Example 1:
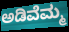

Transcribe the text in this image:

ಅಡಿವೆಮ್ಮ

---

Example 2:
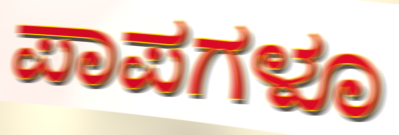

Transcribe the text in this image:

ಪಾಪಗಳೂ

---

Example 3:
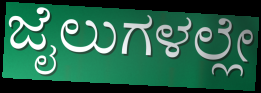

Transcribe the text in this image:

ಜೈಲುಗಳಲ್ಲೇ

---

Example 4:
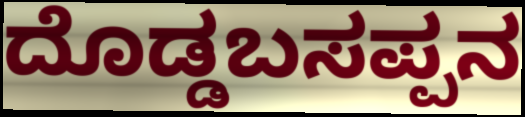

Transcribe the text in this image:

ದೊಡ್ಡಬಸಪ್ಪನ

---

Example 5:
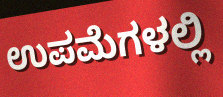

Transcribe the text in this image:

ಉಪಮೆಗಳಲ್ಲಿ